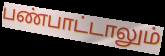
பண்பாட்டாலும்